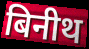
बिनीथ